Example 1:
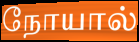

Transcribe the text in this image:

நோயால்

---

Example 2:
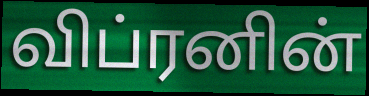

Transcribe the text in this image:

விப்ரனின்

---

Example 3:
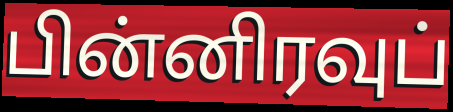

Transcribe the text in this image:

பின்னிரவுப்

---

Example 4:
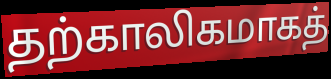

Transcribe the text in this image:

தற்காலிகமாகத்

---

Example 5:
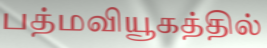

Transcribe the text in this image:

பத்மவியூகத்தில்